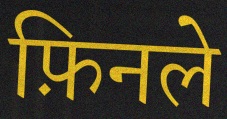
फ़िनले